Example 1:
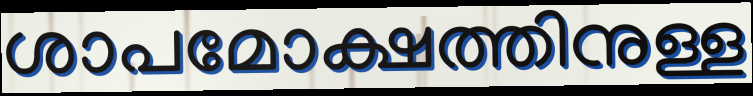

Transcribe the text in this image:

ശാപമോക്ഷത്തിനുള്ള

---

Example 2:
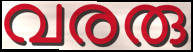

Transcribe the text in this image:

വരരു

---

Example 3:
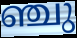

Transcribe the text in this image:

ഞ്ചു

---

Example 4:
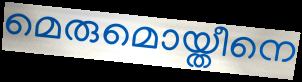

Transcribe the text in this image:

മെരുമൊയ്തീനെ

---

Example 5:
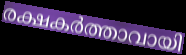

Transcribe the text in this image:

രക്ഷകർത്താവായി